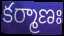
కర్మాణః